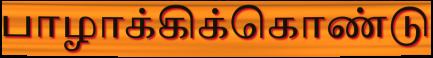
பாழாக்கிக்கொண்டு